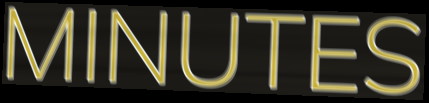
MINUTES